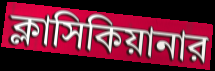
ক্লাসিকিয়ানার